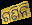
ଗଣିନି